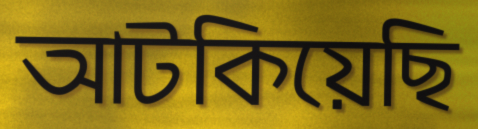
আটকিয়েছি